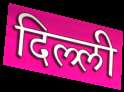
दिल्ली